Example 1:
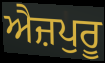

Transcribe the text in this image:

ਐਜ਼ਪੁਰੂ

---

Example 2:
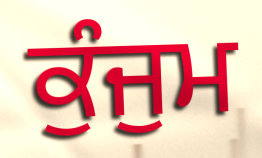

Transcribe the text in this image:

ਕੁੰਜੁਮ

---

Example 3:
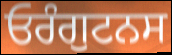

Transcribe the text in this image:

ਓਰੰਗੁਟਨਸ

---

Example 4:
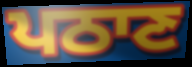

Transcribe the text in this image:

ਪਠਾਣ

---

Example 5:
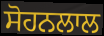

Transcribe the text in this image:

ਸੋਹਨਲਾਲ